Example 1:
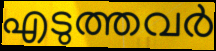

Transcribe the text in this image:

എടുത്തവർ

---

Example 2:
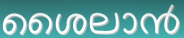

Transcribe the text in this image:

ശൈലാൻ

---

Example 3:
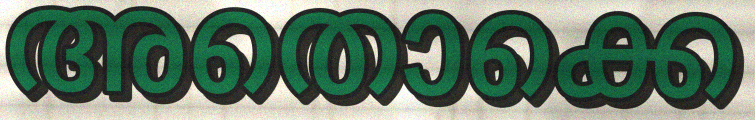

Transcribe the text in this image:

അതൊക്കെ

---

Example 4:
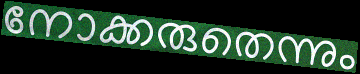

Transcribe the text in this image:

നോക്കരുതെന്നും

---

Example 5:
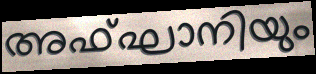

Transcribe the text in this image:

അഫ്ഘാനിയും